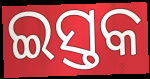
ଇସ୍ତକ